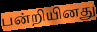
பன்றியினது